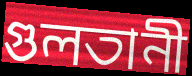
গুলতানী